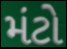
મંટો